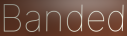
Banded